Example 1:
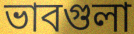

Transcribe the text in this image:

ভাবগুলা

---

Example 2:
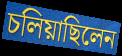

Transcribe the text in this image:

চলিয়াছিলেন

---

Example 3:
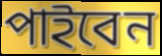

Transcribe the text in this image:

পাইবেন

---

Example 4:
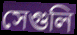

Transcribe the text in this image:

সেগুলি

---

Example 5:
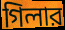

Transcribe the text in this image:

গিলার